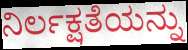
ನಿರ್ಲಕ್ಷತೆಯನ್ನು